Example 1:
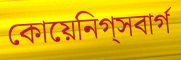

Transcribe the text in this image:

কোয়েনিগ্সবার্গ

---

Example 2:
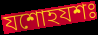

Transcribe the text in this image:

যশোহযশঃ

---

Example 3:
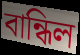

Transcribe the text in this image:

বান্ধিল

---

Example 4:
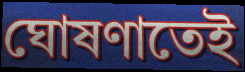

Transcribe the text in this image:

ঘোষণাতেই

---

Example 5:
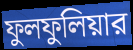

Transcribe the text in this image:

ফুলফুলিয়ার